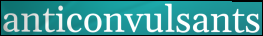
anticonvulsants